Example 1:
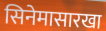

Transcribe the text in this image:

सिनेमासारखा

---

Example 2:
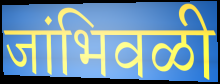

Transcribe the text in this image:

जांभिवळी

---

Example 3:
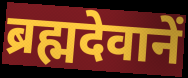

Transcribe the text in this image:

ब्रह्मदेवानें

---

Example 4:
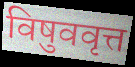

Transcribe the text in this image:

विषुववृत्त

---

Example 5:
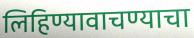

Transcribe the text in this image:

लिहिण्यावाचण्याचा